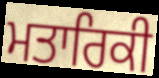
ਮਤਾਰਿਕੀ